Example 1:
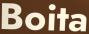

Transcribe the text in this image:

Boita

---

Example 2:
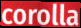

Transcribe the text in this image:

corolla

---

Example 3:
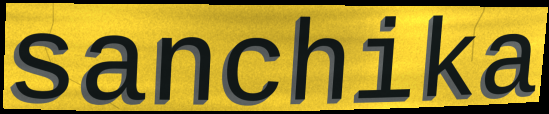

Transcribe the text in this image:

sanchika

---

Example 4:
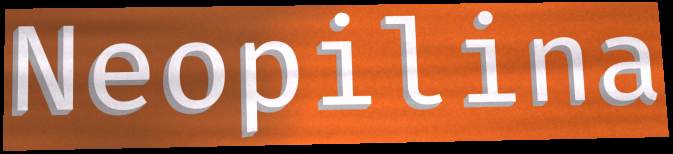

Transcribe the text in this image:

Neopilina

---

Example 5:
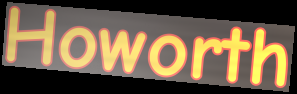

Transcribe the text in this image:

Howorth